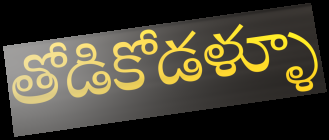
తోడికోడళ్ళూ